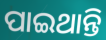
ପାଇଥାନ୍ତି